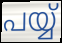
പയ്യ്